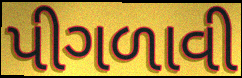
પીગળાવી